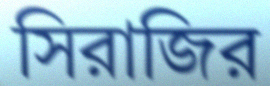
সিরাজির